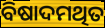
ବିଷାଦମଥିତ